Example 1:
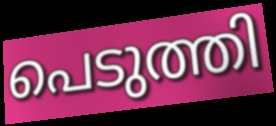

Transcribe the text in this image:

പെടുത്തി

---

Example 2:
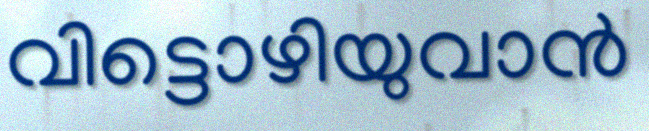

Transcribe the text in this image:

വിട്ടൊഴിയുവാൻ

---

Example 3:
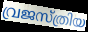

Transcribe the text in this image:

വ്രജസ്ത്രിയ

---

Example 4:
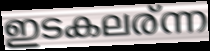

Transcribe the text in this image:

ഇടകലര്ന്ന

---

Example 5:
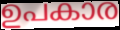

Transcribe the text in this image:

ഉപകാര